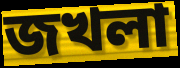
জখলা